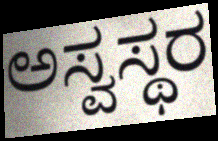
ಅಸ್ವಸ್ಥರ